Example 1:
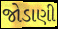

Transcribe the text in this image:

જોડાણી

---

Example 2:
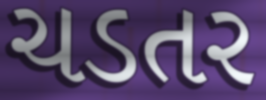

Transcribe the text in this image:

ચડતર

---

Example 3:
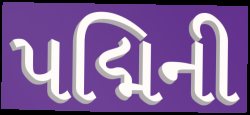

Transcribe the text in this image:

પદ્મિની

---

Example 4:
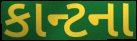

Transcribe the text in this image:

કાન્ટના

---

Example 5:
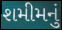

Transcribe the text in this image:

શમીમનું